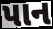
પાન